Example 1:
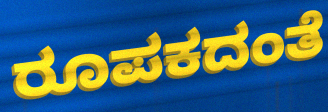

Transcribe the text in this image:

ರೂಪಕದಂತೆ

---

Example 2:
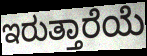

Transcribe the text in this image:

ಇರುತ್ತಾರೆಯೆ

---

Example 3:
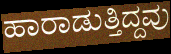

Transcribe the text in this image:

ಹಾರಾಡುತ್ತಿದ್ದವು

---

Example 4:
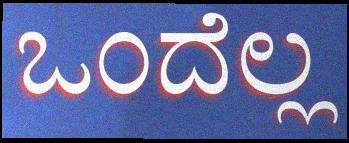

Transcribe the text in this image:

ಒಂದೆಲ್ಲ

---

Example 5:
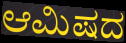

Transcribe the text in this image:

ಆಮಿಷದ